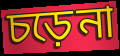
চড়েনা